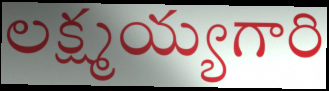
లక్ష్మయ్యగారి